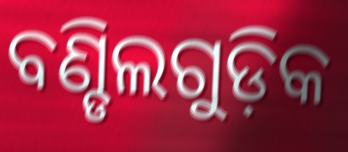
ବଣ୍ଡିଲଗୁଡ଼ିକ